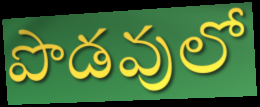
పొడవులో